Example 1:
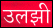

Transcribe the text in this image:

उलझी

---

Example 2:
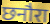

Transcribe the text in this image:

छनौरा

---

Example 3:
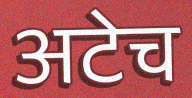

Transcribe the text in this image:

अटेच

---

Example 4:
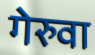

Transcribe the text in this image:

गेरुवा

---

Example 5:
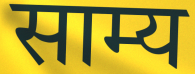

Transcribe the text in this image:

साम्‍य